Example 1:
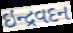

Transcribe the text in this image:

ઇન્દ્રવદન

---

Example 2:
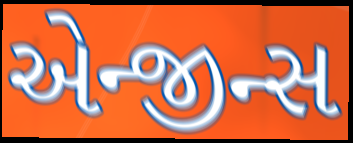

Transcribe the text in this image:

એન્જીન્સ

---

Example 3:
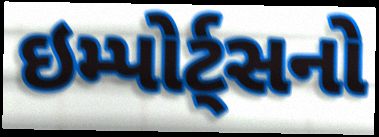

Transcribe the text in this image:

ઇમ્પોર્ટ્સનો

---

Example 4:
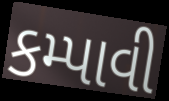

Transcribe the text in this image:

કમ્પાવી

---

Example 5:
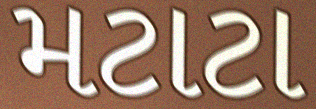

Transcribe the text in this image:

મટાટા